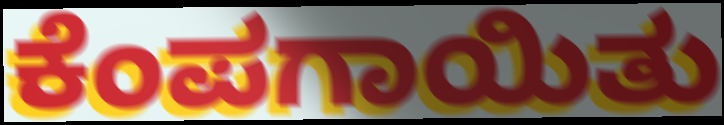
ಕೆಂಪಗಾಯಿತು